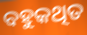
ବହୁକଥିତ